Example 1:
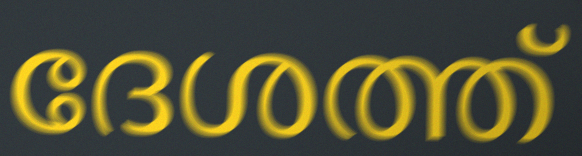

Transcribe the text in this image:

ദേശത്ത്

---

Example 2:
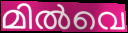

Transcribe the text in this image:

മിൽവെ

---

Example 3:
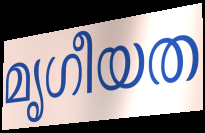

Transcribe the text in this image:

മൃഗീയത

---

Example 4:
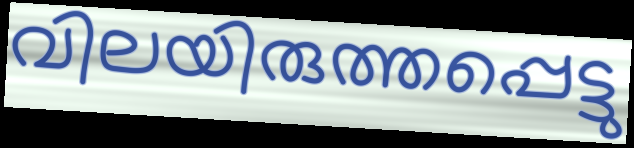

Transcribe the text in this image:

വിലയിരുത്തപ്പെട്ടു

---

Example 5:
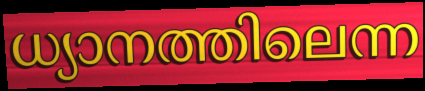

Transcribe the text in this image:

ധ്യാനത്തിലെന്ന